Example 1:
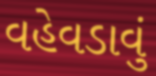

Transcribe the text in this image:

વહેવડાવું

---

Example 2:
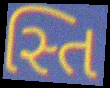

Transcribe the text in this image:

સ્તિ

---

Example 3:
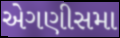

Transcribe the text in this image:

એગણીસમા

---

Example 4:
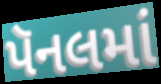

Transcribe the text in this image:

પૅનલમાં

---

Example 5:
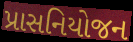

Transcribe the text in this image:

પ્રાસનિયોજન